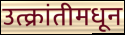
उत्क्रांतीमधून